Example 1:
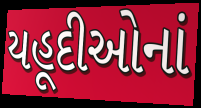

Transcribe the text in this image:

યહૂદીઓનાં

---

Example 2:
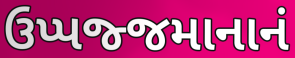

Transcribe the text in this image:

ઉપ્પજ્જમાનાનં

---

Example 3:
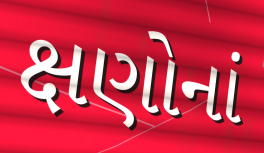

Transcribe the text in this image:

ક્ષણોનાં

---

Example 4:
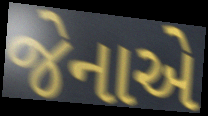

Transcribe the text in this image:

જેનાએ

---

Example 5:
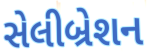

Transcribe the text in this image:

સેલીબ્રેશન